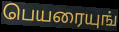
பெயரையுங்